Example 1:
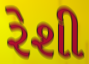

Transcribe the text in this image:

રેશી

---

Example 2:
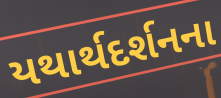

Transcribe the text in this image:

યથાર્થદર્શનના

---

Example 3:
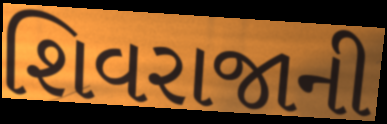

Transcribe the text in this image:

શિવરાજાની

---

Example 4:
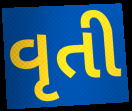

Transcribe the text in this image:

વૃતી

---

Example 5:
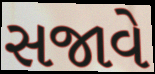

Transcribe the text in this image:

સજાવે